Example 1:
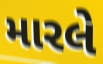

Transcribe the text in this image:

મારલે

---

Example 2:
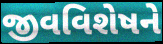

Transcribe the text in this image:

જીવવિશેષને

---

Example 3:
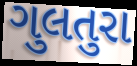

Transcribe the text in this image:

ગુલતુરા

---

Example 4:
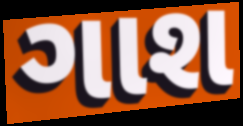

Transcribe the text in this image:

ગાશ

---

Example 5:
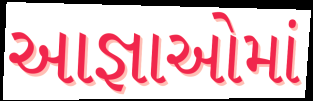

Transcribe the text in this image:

આજ્ઞાઓમાં